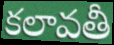
కలావతీ